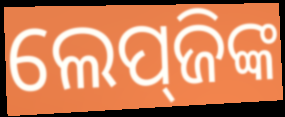
ଲେପ୍‌ଜିଙ୍କ